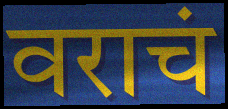
वराचं